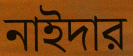
নাইদার